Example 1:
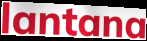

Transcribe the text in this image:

lantana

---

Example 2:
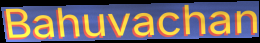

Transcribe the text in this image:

Bahuvachan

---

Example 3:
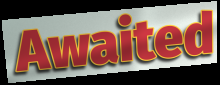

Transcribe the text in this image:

Awaited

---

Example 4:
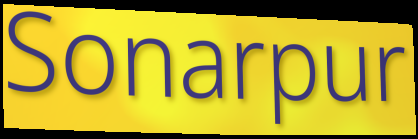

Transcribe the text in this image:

Sonarpur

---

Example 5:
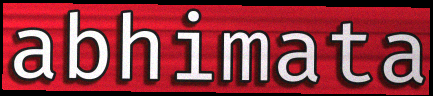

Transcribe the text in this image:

abhimata